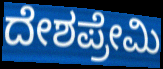
ದೇಶಪ್ರೇಮಿ